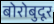
बोरोबुदूर